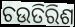
ଚଉତିରିଶ